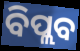
ବିପ୍ଲବ